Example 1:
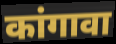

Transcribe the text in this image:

कांगावा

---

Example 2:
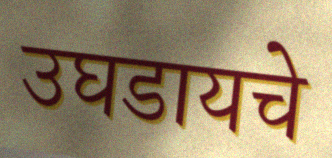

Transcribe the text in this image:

उघडायचे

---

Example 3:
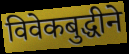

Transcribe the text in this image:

विवेकबुद्धीने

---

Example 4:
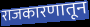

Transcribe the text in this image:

राजकारणातून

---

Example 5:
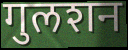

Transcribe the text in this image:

गुलशन